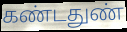
கண்டதுண்